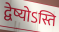
द्वेष्योऽस्ति